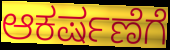
ಆಕರ್ಷಣೆಗೆ